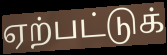
ஏற்பட்டுக்